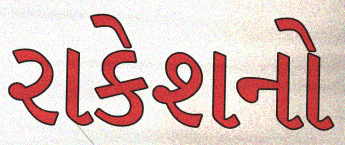
રાકેશનો